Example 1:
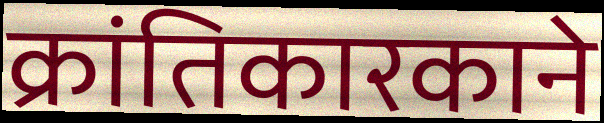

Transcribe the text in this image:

क्रांतिकारकाने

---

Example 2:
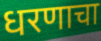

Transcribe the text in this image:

धरणाचा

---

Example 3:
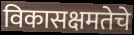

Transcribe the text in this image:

विकासक्षमतेचे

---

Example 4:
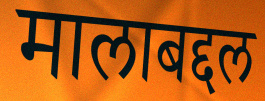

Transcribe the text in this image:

मालाबद्दल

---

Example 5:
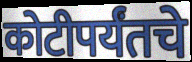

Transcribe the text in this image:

कोटीपर्यंतचे